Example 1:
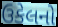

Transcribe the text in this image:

ઉકેલનો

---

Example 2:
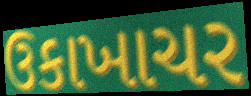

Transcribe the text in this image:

ઉકાખાચર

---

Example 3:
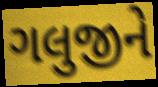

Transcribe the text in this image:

ગલુજીને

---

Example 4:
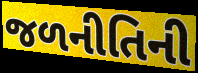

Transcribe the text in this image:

જળનીતિની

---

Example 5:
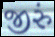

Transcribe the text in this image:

જીરું